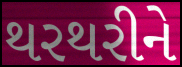
થરથરીને